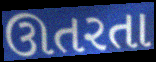
ઊતરતા